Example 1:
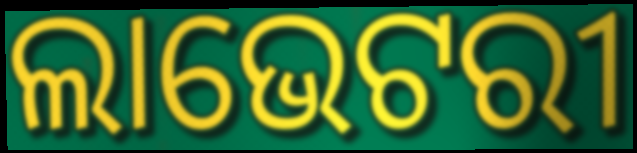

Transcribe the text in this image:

ଲାଭେଟରୀ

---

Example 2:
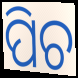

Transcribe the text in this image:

ପିଚ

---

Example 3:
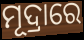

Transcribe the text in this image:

ମୂଦ୍ରାରେ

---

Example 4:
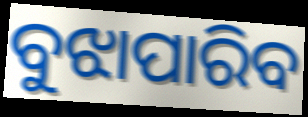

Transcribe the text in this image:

ବୁଝାପାରିବ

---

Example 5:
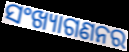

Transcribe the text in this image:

ସଂଖ୍ୟାଗଣନର